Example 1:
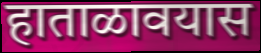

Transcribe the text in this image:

हाताळावयास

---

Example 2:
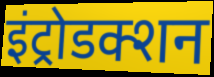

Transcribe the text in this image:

इंट्रोडक्शन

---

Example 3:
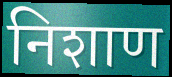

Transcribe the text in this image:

निशाण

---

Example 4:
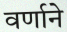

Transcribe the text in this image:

वर्णाने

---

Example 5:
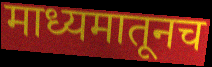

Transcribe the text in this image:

माध्यमातूनच